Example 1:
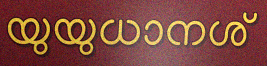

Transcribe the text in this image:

യുയുധാനശ്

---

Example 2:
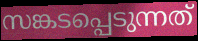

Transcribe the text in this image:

സങ്കടപ്പെടുന്നത്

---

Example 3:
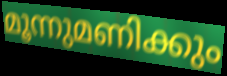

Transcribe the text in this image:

മൂന്നുമണിക്കും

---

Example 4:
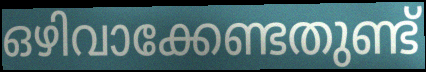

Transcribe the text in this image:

ഒഴിവാക്കേണ്ടതുണ്ട്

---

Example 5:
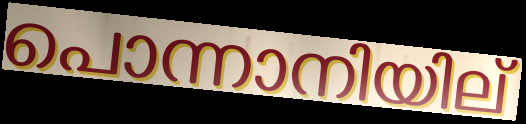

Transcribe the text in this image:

പൊന്നാനിയില്